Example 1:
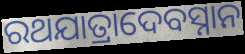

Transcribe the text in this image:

ରଥଯାତ୍ରାଦେବସ୍ନାନ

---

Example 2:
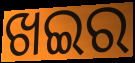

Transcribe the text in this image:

ଖଇର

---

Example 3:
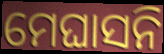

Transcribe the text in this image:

ମେଘାସନି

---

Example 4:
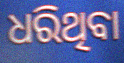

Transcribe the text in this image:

ଧରିଥିବା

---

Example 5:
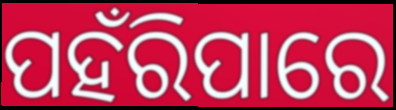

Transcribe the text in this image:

ପହଁରିପାରେ